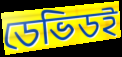
ডেভিডই